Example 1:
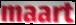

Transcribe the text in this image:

maart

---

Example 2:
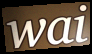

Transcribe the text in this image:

wai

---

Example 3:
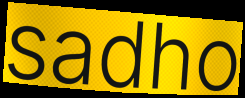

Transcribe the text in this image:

sadho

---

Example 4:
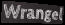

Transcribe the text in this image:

Wrangel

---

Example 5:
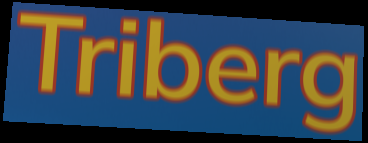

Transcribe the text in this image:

Triberg